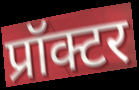
प्रॉक्टर